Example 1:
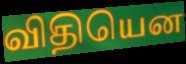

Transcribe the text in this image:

விதியென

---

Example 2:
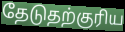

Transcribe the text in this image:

தேடுதற்குரிய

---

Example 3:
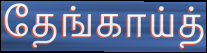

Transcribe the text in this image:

தேங்காய்த்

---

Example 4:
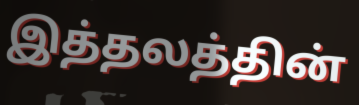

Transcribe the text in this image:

இத்தலத்தின்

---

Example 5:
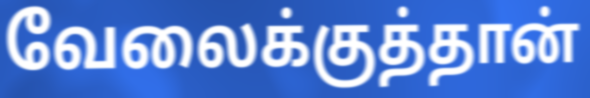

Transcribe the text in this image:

வேலைக்குத்தான்